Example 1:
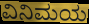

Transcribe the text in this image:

ವಿನಿಮಯ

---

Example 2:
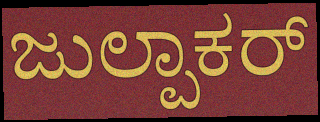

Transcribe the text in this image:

ಜುಲ್ಪಾಕರ್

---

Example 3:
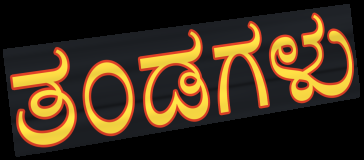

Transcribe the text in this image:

ತಂಡಗಳು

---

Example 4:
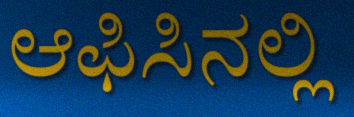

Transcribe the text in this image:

ಆಫಿಸಿನಲ್ಲಿ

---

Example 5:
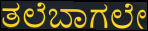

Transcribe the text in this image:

ತಲೆಬಾಗಲೇ